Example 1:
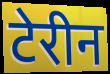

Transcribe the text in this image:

टेरीन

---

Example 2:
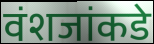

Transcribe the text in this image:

वंशजांकडे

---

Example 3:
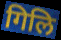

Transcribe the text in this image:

गिलि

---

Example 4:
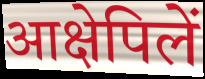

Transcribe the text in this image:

आक्षेपिलें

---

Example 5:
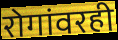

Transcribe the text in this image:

रोगांवरही